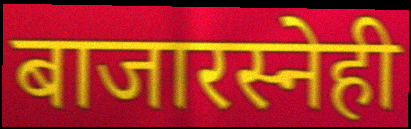
बाजारस्नेही